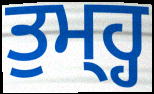
ਤੁਮ੍ਹ੍ਹ